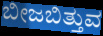
ಬೀಜಬಿತ್ತುವ